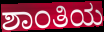
ಶಾಂತಿಯ